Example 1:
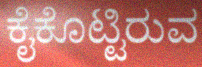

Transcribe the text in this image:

ಕೈಕೊಟ್ಟಿರುವ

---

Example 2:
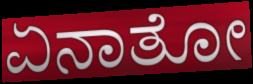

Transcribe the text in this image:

ಏನಾತೋ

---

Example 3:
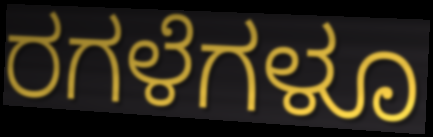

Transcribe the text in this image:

ರಗಳೆಗಳೂ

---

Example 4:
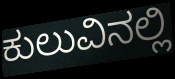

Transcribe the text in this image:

ಕುಲುವಿನಲ್ಲಿ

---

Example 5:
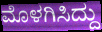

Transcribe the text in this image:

ಮೊಳಗಿಸಿದ್ದು